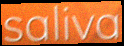
saliva